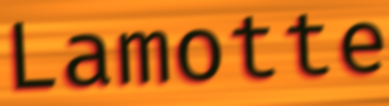
Lamotte